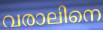
വരാലിനെ